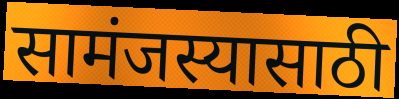
सामंजस्यासाठी